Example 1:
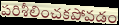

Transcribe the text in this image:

పరిశీలించకపోవడం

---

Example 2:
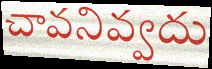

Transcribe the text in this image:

చావనివ్వదు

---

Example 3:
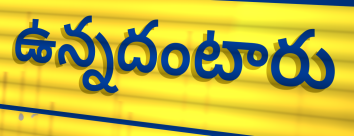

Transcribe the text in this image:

ఉన్నదంటారు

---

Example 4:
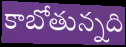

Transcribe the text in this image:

కాబోతున్నది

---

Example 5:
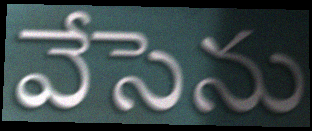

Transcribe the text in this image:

వేసెను